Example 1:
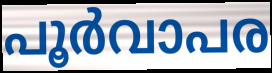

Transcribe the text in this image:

പൂർവാപര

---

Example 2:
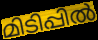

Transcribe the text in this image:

മിടിപ്പിൽ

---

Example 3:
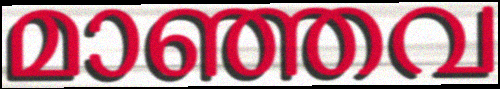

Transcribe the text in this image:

മാഞ്ഞവ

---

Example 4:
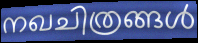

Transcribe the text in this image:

നഖചിത്രങ്ങൾ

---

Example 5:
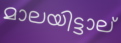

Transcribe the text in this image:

മാലയിട്ടാല്